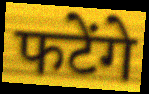
फटेंगे